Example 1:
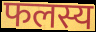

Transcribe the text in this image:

फलस्य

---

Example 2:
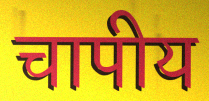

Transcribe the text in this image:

चापीय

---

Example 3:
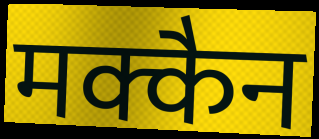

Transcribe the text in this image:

मक्कैन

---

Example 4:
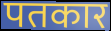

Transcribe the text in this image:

पतकार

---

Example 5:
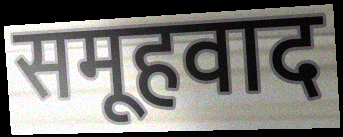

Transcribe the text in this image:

समूहवाद